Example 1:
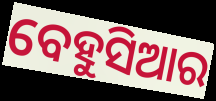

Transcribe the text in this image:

ବେହୁସିଆର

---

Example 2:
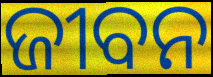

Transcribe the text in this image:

ଜୀବନ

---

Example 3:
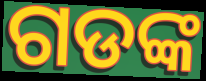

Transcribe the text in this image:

ଗଡଙ୍କ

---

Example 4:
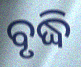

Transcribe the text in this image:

ବୃଦ୍ଧି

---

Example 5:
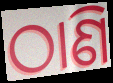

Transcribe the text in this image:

ଠାଣି